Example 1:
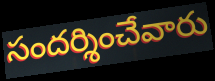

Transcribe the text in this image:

సందర్శించేవారు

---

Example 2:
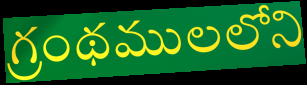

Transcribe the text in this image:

గ్రంథములలోని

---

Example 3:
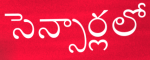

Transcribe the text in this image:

సెన్సార్లలో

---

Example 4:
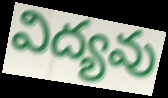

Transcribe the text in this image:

విద్యవు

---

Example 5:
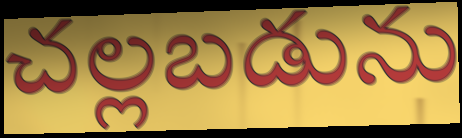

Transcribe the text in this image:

చల్లబడును